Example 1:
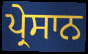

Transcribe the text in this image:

ਪ੍ਰੇਸਾਨ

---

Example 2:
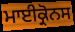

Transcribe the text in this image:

ਮਾਈਕ੍ਰੋਨਸ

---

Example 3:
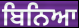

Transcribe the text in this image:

ਬਿਨਿਆ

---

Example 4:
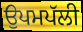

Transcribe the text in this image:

ਉਪਮਪੱਲੀ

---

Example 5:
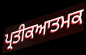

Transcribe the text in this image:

ਪ੍ਰਤੀਕਆਤਮਕ